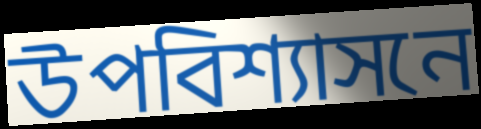
উপবিশ্যাসনে